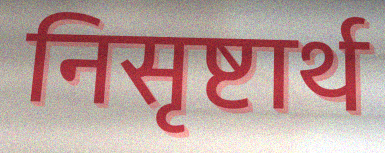
निसृष्टार्थ